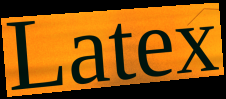
Latex